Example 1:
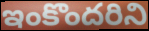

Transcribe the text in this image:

ఇంకొందరిని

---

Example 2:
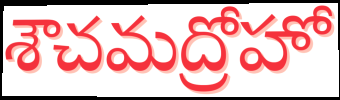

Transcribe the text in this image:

శౌచమద్రోహో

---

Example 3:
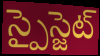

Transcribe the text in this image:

స్పైస్జెట్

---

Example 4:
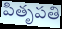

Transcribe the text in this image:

పితృపతి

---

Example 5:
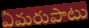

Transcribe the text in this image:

ఏమరుపాటు